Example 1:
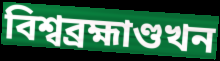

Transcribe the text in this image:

বিশ্বব্ৰহ্মাণ্ডখন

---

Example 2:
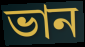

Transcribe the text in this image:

ভান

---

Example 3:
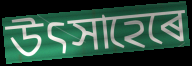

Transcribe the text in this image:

উৎসাহেৰে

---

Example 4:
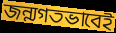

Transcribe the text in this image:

জন্মগতভাবেই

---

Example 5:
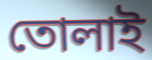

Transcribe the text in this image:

তোলাই